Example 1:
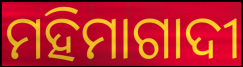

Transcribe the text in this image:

ମହିମାଗାଦୀ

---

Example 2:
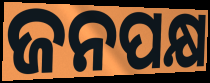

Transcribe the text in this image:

ଜନପକ୍ଷ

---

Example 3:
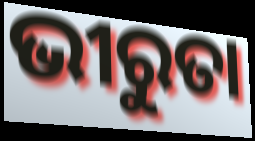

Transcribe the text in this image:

ଭୀରୁତା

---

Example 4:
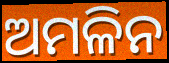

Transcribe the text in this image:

ଅମଳିନ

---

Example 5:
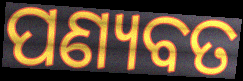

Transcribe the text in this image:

ପଣ୍ୟବତ